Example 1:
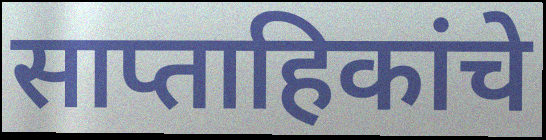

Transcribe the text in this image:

साप्ताहिकांचे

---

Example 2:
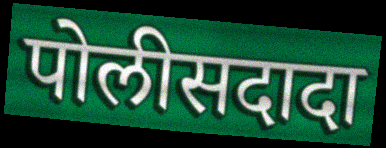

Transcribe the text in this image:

पोलीसदादा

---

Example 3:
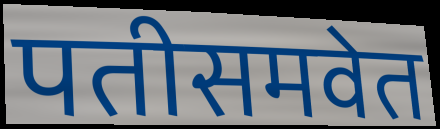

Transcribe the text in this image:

पतीसमवेत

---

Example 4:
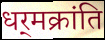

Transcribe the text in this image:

धर्मक्रांति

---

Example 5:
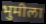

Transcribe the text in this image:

भुमीला